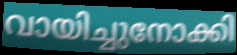
വായിച്ചുനോക്കി